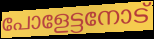
പോളേട്ടനോട്